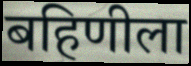
बहिणीला